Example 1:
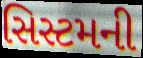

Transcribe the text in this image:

સિસ્ટમની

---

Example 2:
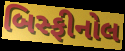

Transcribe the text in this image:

બિસ્ફીનોલ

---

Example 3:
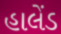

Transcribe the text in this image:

હાલેંડ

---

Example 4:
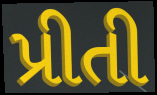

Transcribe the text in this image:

પ્રીતી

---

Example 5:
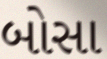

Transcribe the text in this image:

બોસા